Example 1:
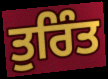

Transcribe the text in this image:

ਤੁਰਿੰਤ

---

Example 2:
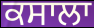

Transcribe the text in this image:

ਕਸਾਲਾ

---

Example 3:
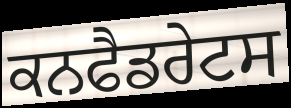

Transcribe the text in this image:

ਕਨਫੈਡਰੇਟਸ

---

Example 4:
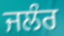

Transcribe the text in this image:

ਜਲੰਰ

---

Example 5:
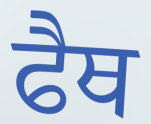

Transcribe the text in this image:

ਫੈਥ